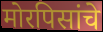
मोरपिसांचे